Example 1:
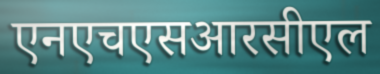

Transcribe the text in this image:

एनएचएसआरसीएल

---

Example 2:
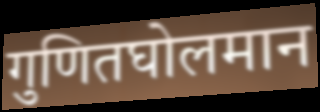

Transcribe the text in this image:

गुणितघोलमान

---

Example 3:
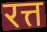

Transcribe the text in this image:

रत्त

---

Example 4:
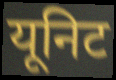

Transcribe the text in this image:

यूनिट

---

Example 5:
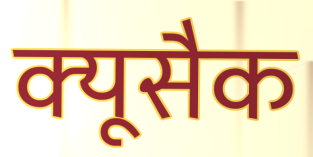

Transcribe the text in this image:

क्यूसैक